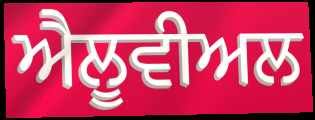
ਐਲੂਵੀਅਲ